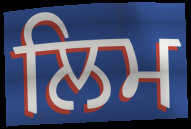
ਲਿਮ